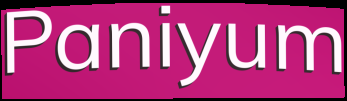
Paniyum